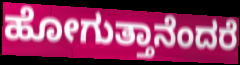
ಹೋಗುತ್ತಾನೆಂದರೆ